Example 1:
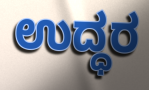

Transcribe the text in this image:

ಉದ್ಧರ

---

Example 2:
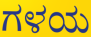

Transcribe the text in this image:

ಗಳಯ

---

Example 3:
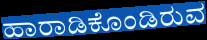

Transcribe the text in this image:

ಹಾರಾಡಿಕೊಂಡಿರುವ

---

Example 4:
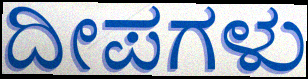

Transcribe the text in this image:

ದೀಪಗಳು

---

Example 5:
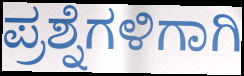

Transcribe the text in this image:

ಪ್ರಶ್ನೆಗಳಿಗಾಗಿ